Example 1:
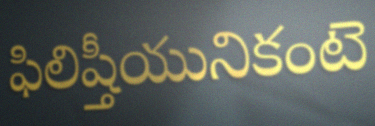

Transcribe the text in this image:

ఫిలిష్తీయునికంటె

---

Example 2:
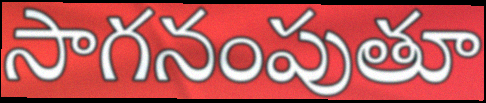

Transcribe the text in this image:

సాగనంపుతూ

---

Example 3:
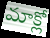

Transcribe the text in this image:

మాక్లో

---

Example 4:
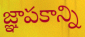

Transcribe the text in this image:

జ్ఞాపకాన్ని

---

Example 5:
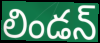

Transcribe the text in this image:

లిండన్